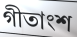
গীতাংশ